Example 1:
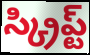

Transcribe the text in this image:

స్క్రిప్ట్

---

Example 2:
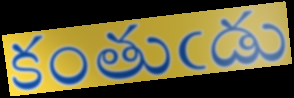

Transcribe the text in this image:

కంతుఁడు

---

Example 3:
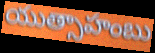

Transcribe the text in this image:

యుత్సాహంబు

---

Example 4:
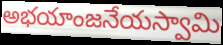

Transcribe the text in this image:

అభయాంజనేయస్వామి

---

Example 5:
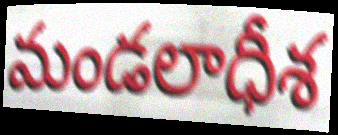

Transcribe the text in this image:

మండలాధీశ